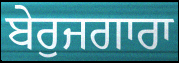
ਬੇਰੁਜਗਾਰਾ